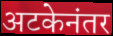
अटकेनंतर